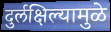
दुर्लक्षिल्यामुळे